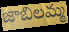
జాబిలమ్మ